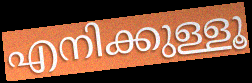
എനിക്കുള്ളൂ